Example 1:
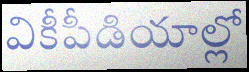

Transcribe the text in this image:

వికీపీడియాల్లో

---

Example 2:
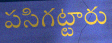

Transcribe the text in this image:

పసిగట్టారు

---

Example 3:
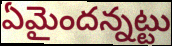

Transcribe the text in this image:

ఏమైందన్నట్టు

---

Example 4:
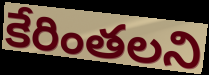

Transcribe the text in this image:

కేరింతలని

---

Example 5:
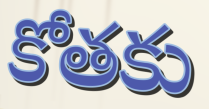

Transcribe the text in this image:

కోతకు